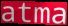
atma